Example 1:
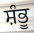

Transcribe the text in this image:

ਸ਼ੰਭੂ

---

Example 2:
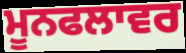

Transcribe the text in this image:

ਮੂਨਫਲਾਵਰ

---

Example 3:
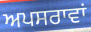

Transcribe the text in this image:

ਅਪਸਰਾਵਾਂ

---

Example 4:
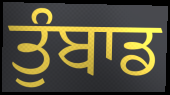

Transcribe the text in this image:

ਤੁੰਬਾਡ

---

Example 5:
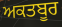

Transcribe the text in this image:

ਅਕਤਬੂਰ